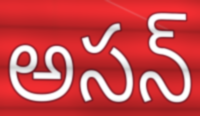
అసన్